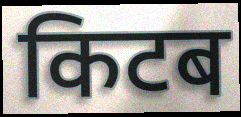
किटब